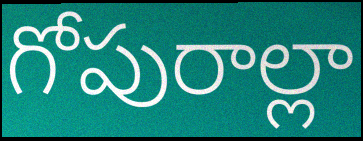
గోపురాల్లా